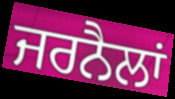
ਜਰਨੈਲਾਂ